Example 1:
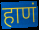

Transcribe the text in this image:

हाणं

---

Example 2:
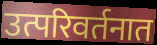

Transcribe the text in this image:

उत्परिवर्तनात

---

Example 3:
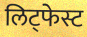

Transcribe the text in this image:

लिट्फेस्ट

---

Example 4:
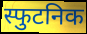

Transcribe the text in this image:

स्फुटनिक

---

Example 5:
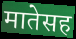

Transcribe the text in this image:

मातेसह